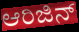
ಆರಿಜಿನ್